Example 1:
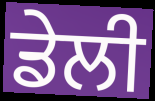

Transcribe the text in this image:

ਡੇਲੀ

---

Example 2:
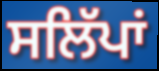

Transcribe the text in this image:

ਸਲਿੱਪਾਂ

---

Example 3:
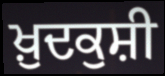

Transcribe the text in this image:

ਖ਼ੁਦਕੁਸ਼ੀ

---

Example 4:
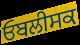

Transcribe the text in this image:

ਓਬਲੀਸਕ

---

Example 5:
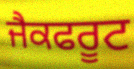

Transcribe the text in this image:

ਜੈਕਫਰੂਟ